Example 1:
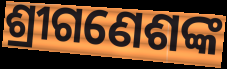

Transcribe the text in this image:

ଶ୍ରୀଗଣେଶଙ୍କ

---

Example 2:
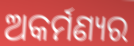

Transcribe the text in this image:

ଅକର୍ମଣ୍ୟର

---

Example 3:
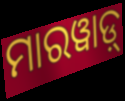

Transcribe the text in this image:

ମାରୱାଡ଼୍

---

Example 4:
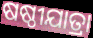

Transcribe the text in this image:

ଷଷ୍ଠୀଯାତ୍ରା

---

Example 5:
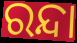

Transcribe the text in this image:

ରନ୍ଦା